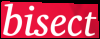
bisect